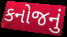
કનોજનું